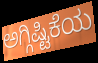
ಅಗ್ಗಿಷ್ಟಿಕೆಯ